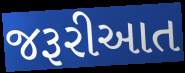
જરૂરીઆત